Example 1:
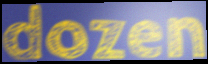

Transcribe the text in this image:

dozen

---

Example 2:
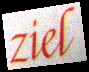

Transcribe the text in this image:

ziel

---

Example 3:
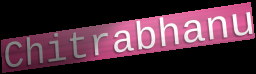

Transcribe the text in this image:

Chitrabhanu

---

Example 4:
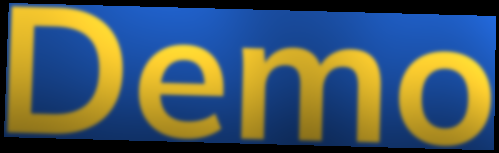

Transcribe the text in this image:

Demo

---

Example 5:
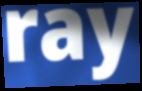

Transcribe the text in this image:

ray